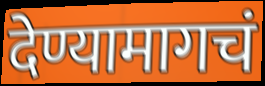
देण्यामागचं